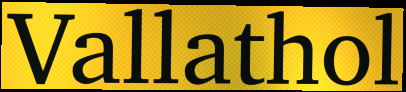
Vallathol